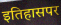
इतिहासपर